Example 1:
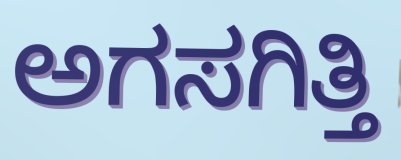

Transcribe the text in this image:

ಅಗಸಗಿತ್ತಿ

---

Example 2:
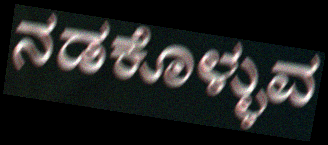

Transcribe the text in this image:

ನಡಕೊಳ್ಳುವ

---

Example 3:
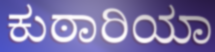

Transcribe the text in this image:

ಕುಠಾರಿಯಾ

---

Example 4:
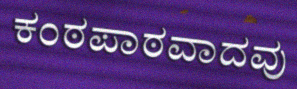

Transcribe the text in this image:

ಕಂಠಪಾಠವಾದವು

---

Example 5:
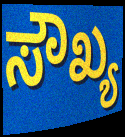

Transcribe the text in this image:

ಸೌಖ್ಯ